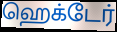
ஹெக்டேர்